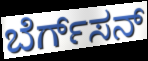
ಬೆರ್ಗ್‌ಸನ್